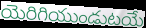
యెరిగియుండుటయే